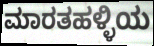
ಮಾರತಹಳ್ಳಿಯ